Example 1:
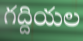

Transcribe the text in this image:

గద్దియల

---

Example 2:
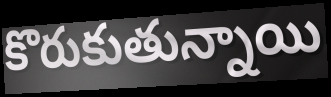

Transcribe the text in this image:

కొరుకుతున్నాయి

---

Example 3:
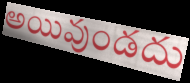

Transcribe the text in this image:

అయివుండదు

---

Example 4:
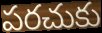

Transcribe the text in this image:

పరచుకు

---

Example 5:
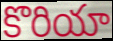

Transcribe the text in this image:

కొరియా